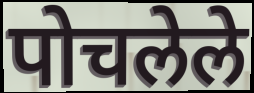
पोचलेले